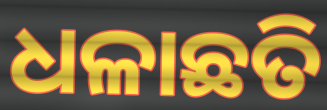
ଧଳାଛତି